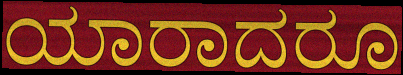
ಯಾರಾದರೂ